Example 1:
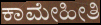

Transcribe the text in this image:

ಕಾಮೇಹೀತಿ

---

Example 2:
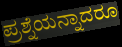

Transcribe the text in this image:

ಪ್ರಶ್ನೆಯನ್ನಾದರೂ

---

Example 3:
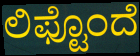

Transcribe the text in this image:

ಲಿಫ್ಟೊಂದೆ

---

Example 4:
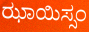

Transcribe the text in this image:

ಝಾಯಿಸ್ಸಂ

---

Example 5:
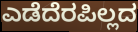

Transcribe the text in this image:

ಎಡೆದೆರಪಿಲ್ಲದ